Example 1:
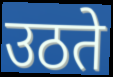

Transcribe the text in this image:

उठते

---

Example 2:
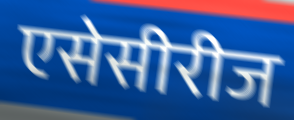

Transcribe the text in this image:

एसेसीरीज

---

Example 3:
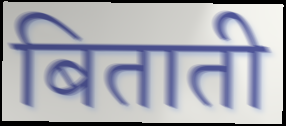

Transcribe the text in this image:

बिताती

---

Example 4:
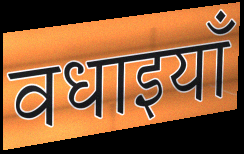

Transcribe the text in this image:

वधाइयाँ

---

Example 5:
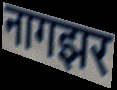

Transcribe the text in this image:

नागझर